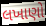
લખાણો